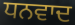
ਧਨਵਾਦ